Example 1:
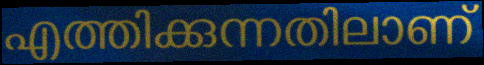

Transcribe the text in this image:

എത്തിക്കുന്നതിലാണ്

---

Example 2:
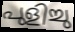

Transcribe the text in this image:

പുളിച്ചു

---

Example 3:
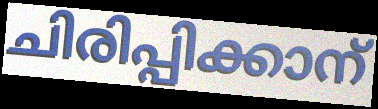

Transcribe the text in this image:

ചിരിപ്പിക്കാന്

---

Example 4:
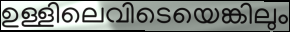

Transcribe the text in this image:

ഉള്ളിലെവിടെയെങ്കിലും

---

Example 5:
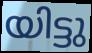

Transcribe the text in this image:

യിട്ടു